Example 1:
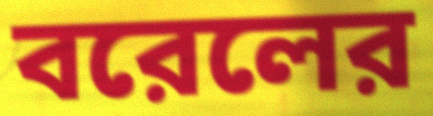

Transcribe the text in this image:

বরেলের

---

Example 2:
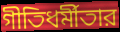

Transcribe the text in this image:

গীতিধর্মীতার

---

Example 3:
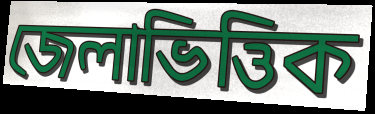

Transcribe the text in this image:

জেলাভিত্তিক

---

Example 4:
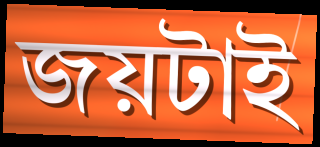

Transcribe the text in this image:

জয়টাই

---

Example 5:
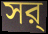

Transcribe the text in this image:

সর্